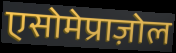
एसोमेप्राज़ोल